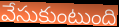
వేసుకుంటుంది